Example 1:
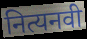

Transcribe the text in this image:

नित्यनवी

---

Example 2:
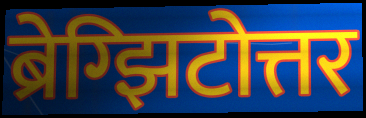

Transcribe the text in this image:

ब्रेग्झिटोत्तर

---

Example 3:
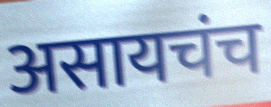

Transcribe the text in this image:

असायचंच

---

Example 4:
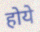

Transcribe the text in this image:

होये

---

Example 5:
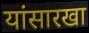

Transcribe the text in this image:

यांसारखा